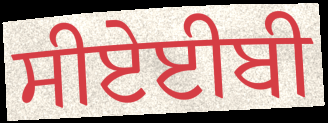
ਸੀਏਈਬੀ